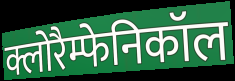
क्लोरैम्फेनिकॉल